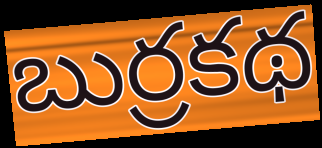
బుర్రకథ